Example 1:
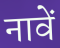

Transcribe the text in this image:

नावें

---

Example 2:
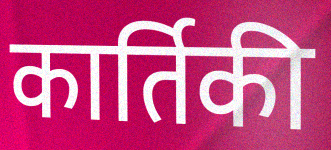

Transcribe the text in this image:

कार्तिकी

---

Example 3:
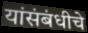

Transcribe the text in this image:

यांसंबंधीचे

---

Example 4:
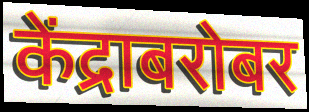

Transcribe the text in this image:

केंद्राबरोबर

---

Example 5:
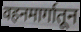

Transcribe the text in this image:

वहनमार्गातून